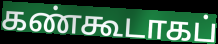
கண்கூடாகப்